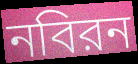
নবিরন